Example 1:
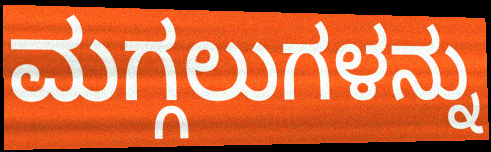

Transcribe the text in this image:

ಮಗ್ಗಲುಗಳನ್ನು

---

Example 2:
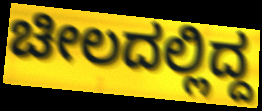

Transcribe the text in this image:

ಚೀಲದಲ್ಲಿದ್ದ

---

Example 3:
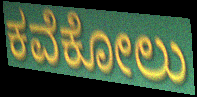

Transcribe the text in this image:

ಕವೆಕೋಲು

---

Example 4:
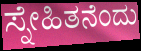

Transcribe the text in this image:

ಸ್ನೇಹಿತನೆಂದು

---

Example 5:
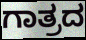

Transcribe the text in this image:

ಗಾತ್ರದ